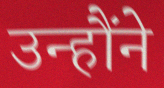
उन्हौंने